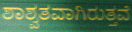
ಶಾಶ್ವತವಾಗಿರುತ್ತವೆ